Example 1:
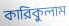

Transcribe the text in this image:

কারিকুলাম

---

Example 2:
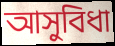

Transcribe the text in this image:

আসুবিধা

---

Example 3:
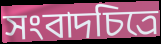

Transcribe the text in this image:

সংবাদচিত্রে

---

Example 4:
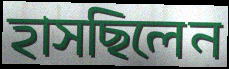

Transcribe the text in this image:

হাসছিলেন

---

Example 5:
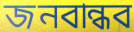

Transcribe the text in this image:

জনবান্ধব